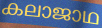
കലാജാഥ